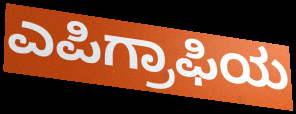
ಎಪಿಗ್ರಾಫಿಯ